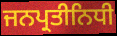
ਜਨਪ੍ਰਤੀਨਿਧੀ